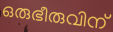
ഒരുഭീരുവിന്